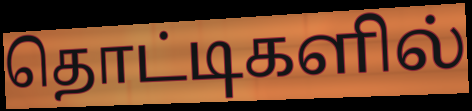
தொட்டிகளில்